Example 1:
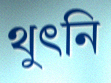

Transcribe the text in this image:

থুৎনি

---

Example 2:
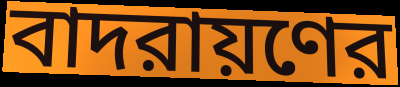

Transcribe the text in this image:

বাদরায়ণের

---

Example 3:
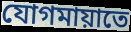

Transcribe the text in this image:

যোগমায়াতে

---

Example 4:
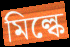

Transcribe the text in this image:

মিল্কে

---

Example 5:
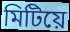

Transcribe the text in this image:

মিটিয়ে